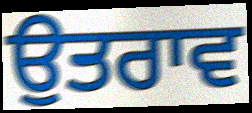
ਉਤਰਾਵ